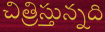
చిత్రిస్తున్నది